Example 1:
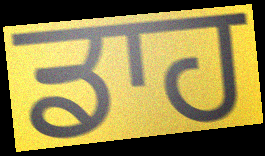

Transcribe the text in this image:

ਡਾਹ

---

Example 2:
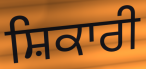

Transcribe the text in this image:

ਸ਼ਿਕਾਰੀ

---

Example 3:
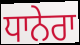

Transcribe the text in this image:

ਧਾਨੇਰਾ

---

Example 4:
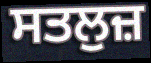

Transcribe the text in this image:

ਸਤਲੁਜ਼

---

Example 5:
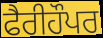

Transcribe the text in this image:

ਫੈਰੀਹੌਪਰ